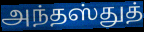
அந்தஸ்துத்